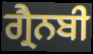
ਗ੍ਰੈਨਬੀ